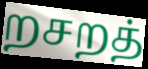
றசறத்